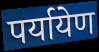
पर्यायेण